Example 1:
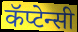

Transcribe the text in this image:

कॅप्टेन्सी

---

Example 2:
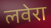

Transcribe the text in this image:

लवेरा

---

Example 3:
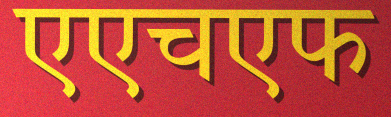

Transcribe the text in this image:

एएचएफ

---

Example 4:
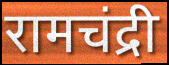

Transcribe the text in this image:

रामचंद्री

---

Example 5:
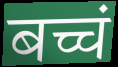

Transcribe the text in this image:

बच्चं